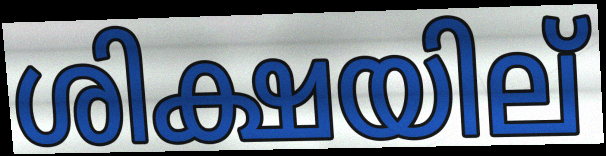
ശിക്ഷയില്